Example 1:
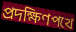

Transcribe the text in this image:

প্রদক্ষিণপথে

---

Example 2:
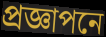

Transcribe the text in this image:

প্রজ্ঞাপনে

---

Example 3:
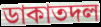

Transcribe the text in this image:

ডাকাতদল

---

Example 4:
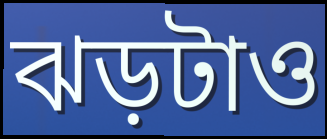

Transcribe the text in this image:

ঝড়টাও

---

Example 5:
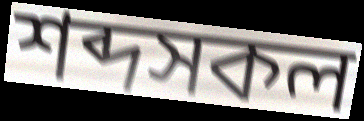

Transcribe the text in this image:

শব্দসকল